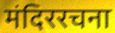
मंदिररचना